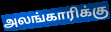
அலங்காரிக்கு